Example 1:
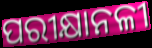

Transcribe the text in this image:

ପରୀକ୍ଷାନଳୀ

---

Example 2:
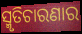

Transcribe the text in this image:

ସ୍ମୃତିଚାରଣାର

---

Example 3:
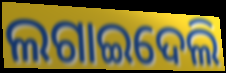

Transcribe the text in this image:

ଲଗାଇଦେଲି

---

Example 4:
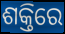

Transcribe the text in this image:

ଶକ୍ତିରେ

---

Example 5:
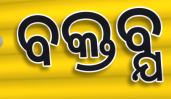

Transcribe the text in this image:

ବକ୍ତବ୍ଯ